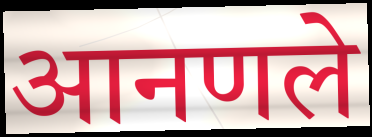
आनणले